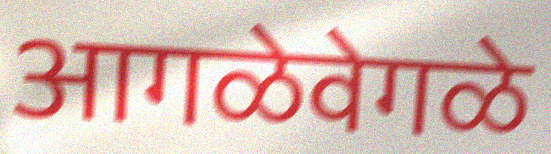
आगळेवेगळे